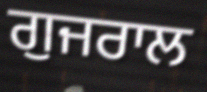
ਗੁਜਰਾਲ